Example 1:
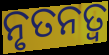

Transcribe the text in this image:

ନୃତନତ୍ୱ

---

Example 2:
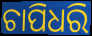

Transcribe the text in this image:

ଚାପିଧରି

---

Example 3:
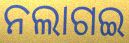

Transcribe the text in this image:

ନଲାଗଇ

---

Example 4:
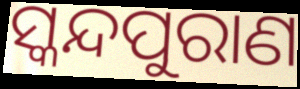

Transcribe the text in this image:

ସ୍କନ୍ଦପୁରାଣ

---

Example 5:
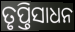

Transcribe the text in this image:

ତୃପ୍ତିସାଧନ